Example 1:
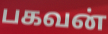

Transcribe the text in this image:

பகவன்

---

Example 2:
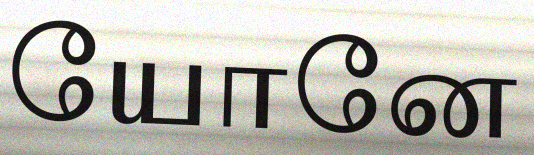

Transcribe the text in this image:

யோனே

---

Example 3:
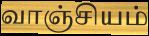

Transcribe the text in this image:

வாஞ்சியம்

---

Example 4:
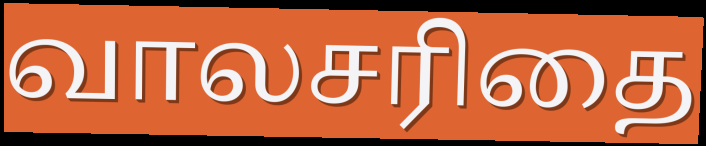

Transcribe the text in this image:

வாலசரிதை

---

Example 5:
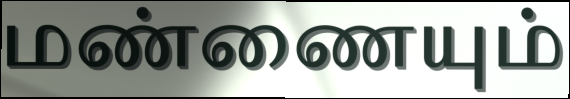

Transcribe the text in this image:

மண்ணையும்